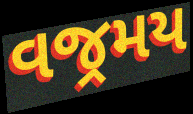
વજ્રમય